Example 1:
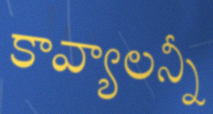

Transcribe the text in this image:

కావ్యాలన్నీ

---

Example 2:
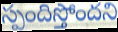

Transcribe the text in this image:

స్పందిస్తోందని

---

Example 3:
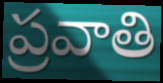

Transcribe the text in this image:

ప్రవాతి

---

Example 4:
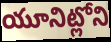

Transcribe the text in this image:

యూనిట్లోని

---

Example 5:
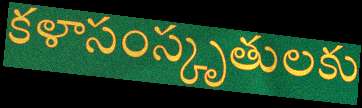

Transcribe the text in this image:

కళాసంస్కృతులకు